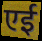
एई